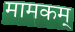
मामकम्